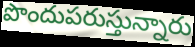
పొందుపరుస్తున్నారు